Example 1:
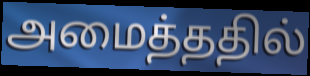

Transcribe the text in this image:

அமைத்ததில்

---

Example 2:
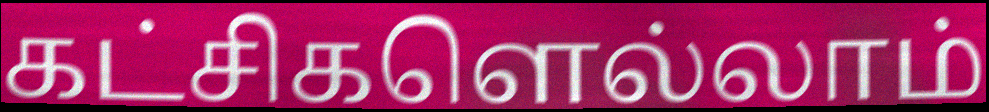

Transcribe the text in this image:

கட்சிகளெல்லாம்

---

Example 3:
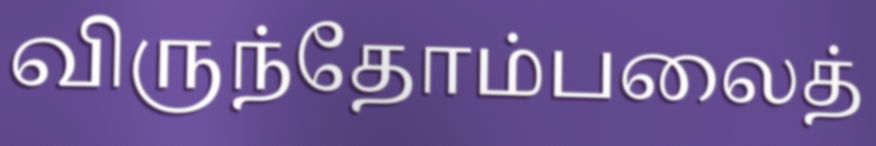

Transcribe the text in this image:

விருந்தோம்பலைத்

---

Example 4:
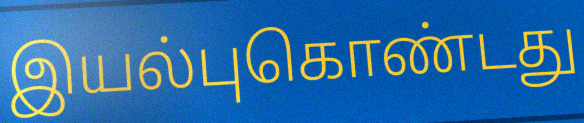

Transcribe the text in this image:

இயல்புகொண்டது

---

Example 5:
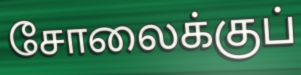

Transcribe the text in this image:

சோலைக்குப்